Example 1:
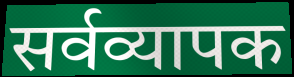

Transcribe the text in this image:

सर्वव्यापक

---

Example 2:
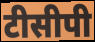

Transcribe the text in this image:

टीसीपी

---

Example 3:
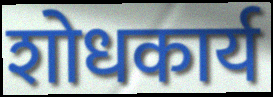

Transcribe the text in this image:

शोधकार्य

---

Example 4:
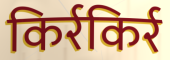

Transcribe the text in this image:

किर्रकिर्र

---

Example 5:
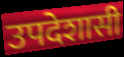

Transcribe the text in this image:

उपदेशासी